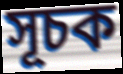
সূচক